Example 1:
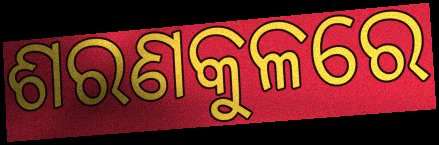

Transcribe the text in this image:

ଶରଣକୁଳରେ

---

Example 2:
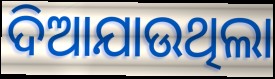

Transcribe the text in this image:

ଦିଆଯାଉଥିଲା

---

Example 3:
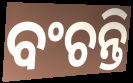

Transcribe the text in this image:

ବଂଚନ୍ତି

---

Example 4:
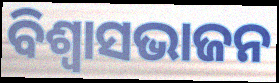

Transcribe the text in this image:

ବିଶ୍ଵାସଭାଜନ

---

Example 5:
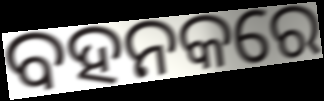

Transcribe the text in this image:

ବହନକରେ